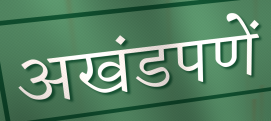
अखंडपणें